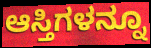
ಆಸ್ತಿಗಳನ್ನೂ